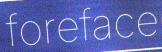
foreface